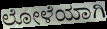
ಲೋಳೆಯಾಗಿ